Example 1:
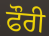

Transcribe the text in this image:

ਫੌਰੀ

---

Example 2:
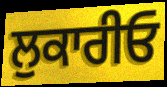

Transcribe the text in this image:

ਲੁਕਾਰੀਓ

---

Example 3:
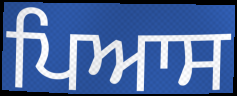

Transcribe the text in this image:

ਪਿਆਸ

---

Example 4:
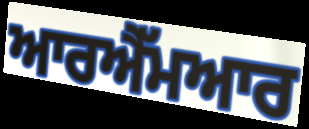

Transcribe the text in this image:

ਆਰਐੱਮਆਰ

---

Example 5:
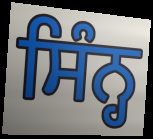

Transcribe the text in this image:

ਸਿੰਨ੍ਹ